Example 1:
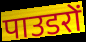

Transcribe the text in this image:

पाउडरों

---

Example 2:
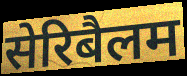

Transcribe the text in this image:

सेरिबैलम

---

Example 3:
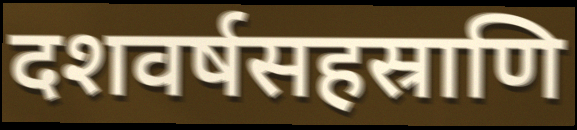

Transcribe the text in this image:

दशवर्षसहस्राणि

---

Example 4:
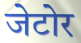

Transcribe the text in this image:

जेटोर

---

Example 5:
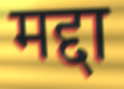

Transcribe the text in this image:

मद्दा